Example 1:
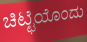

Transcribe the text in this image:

ಚಿಟ್ಟೆಯೊಂದು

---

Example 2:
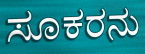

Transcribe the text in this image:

ಸೂಕರನು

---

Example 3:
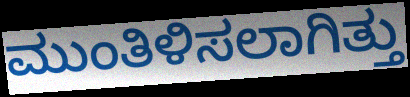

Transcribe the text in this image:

ಮುಂತಿಳಿಸಲಾಗಿತ್ತು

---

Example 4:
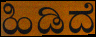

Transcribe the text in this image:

ಹಿಡಿದೆ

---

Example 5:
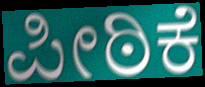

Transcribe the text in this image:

ಪೀಠಿಕೆ